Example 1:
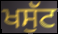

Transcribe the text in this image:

ਖਸੁੱਟ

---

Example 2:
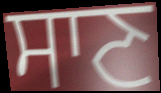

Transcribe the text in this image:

ਸਾਣ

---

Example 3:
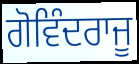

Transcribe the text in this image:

ਗੋਵਿੰਦਰਾਜੂ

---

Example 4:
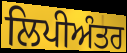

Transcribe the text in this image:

ਲਿਪੀਅੰਤਰ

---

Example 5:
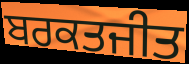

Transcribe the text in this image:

ਬਰਕਤਜੀਤ